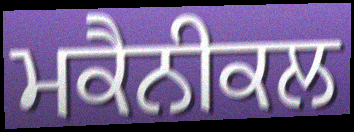
ਮਕੈਨੀਕਲ